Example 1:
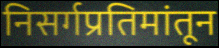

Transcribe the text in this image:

निसर्गप्रतिमांतून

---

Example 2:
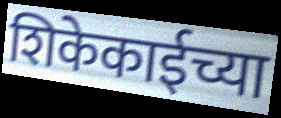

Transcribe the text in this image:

शिकेकाईच्या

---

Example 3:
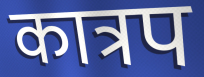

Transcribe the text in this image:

कात्रप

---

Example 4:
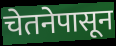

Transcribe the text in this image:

चेतनेपासून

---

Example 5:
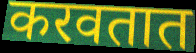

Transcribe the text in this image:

करवतात